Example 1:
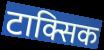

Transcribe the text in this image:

टाक्सिक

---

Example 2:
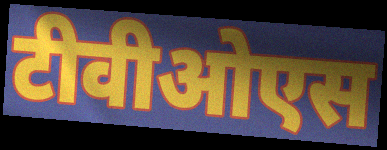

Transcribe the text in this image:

टीवीओएस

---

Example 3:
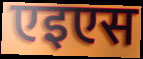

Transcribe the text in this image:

एइएस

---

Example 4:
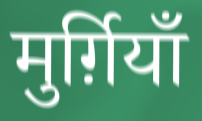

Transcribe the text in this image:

मुर्ग़ियाँ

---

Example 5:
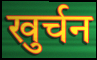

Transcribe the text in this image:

खुर्चन